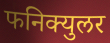
फनिक्युलर